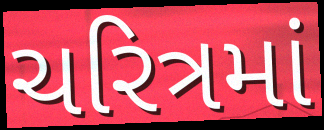
ચરિત્રમાં